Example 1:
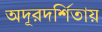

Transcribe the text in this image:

অদূরদর্শিতায়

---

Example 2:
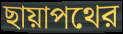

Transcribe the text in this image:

ছায়াপথের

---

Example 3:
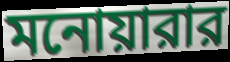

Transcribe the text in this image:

মনোয়ারার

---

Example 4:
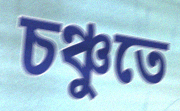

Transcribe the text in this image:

চঞ্চুতে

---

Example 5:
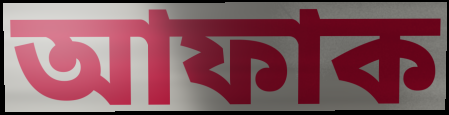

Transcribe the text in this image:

আফাক